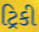
ટ્રિકી